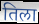
तिला